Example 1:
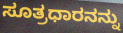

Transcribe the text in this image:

ಸೂತ್ರಧಾರನನ್ನು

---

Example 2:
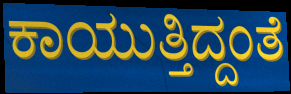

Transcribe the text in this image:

ಕಾಯುತ್ತಿದ್ದಂತೆ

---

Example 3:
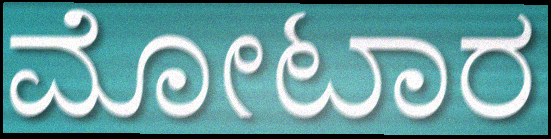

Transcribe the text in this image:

ಮೋಟಾರ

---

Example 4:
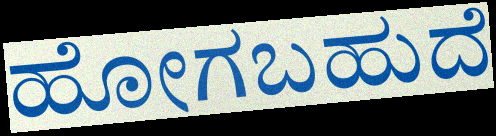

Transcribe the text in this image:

ಹೋಗಬಹುದೆ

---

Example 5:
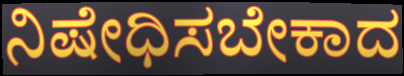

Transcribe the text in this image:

ನಿಷೇಧಿಸಬೇಕಾದ